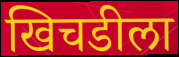
खिचडीला